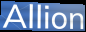
Allion